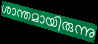
ശാന്തമായിരുന്നു